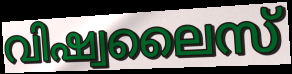
വിഷ്വലൈസ്